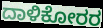
ದಾಳಿಕೋರರ